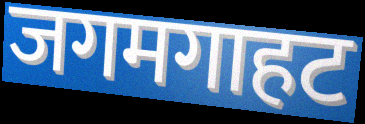
जगमगाहट